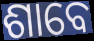
ଶାବେ